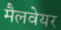
मैलवेयर